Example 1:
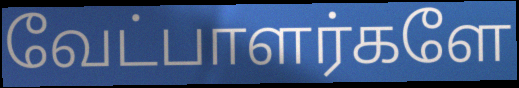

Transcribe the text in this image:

வேட்பாளர்களே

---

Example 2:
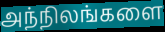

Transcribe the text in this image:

அந்நிலங்களை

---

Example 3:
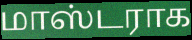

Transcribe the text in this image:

மாஸ்டராக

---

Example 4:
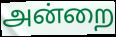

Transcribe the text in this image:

அன்றை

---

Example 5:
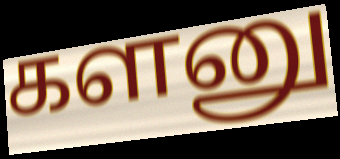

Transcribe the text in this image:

களனு